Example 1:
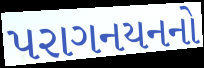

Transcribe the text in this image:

પરાગનયનનો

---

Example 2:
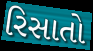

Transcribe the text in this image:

રિસાતો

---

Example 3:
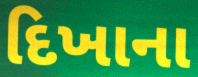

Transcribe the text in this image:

દિખાના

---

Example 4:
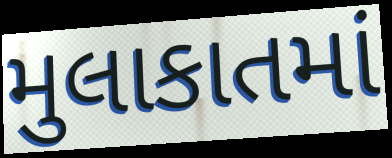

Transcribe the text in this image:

મુલાકાતમાં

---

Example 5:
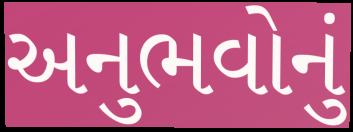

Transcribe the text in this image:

અનુભવોનું